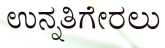
ಉನ್ನತಿಗೇರಲು